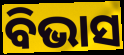
ବିଭାସ